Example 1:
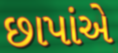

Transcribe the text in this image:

છાપાંએ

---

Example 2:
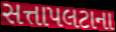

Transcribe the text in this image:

સત્તાપલટાના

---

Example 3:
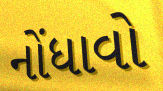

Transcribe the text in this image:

નોંધાવો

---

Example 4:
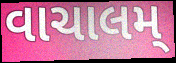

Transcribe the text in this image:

વાચાલમ્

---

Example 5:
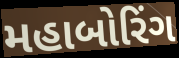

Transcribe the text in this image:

મહાબોરિંગ